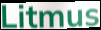
Litmus